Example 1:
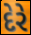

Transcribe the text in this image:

દેરે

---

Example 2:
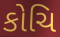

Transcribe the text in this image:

કોચિ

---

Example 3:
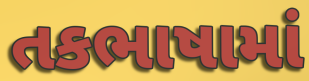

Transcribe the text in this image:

તકભાષામાં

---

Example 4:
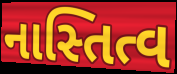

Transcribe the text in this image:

નાસ્તિત્વ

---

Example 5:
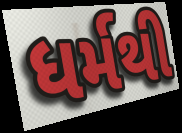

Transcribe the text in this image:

ધર્મથી